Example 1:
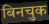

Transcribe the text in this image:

बिनचुक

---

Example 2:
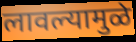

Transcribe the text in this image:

लावल्यामुळे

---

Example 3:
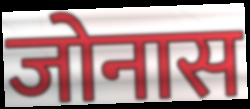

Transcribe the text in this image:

जोनास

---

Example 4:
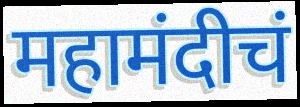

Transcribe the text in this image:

महामंदीचं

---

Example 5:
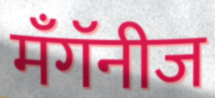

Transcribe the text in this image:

मँगॅनीज